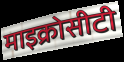
माइक्रोसीटी